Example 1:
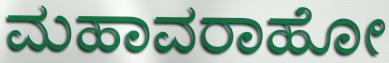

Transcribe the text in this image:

ಮಹಾವರಾಹೋ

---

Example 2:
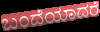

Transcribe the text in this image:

ಬಂದೆಯಾದರೆ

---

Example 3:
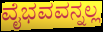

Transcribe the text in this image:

ವೈಭವವನ್ನಲ್ಲ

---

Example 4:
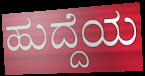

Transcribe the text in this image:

ಹುದ್ದೆಯ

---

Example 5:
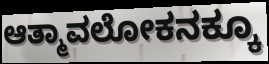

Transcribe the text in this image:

ಆತ್ಮಾವಲೋಕನಕ್ಕೂ